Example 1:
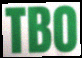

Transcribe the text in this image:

TBO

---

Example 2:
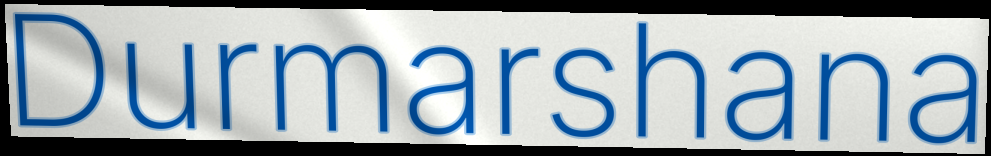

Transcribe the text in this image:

Durmarshana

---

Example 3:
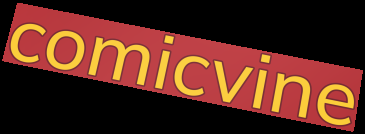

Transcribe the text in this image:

comicvine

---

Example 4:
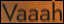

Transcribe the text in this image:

Vaaah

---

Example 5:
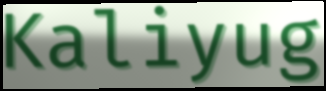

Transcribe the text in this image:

Kaliyug